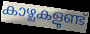
കാഴ്ചകളുണ്ട്